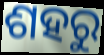
ଶହରୁ